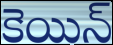
కెయిన్